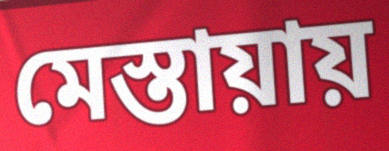
মেস্তায়ায়